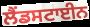
ਲੈਂਡਸਟਾਈਨ